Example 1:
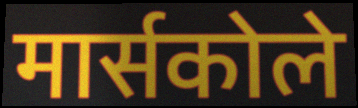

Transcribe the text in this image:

मार्सकोले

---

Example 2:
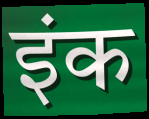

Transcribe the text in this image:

इंक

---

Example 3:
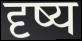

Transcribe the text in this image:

दृष्य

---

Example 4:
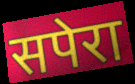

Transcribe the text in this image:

सपेरा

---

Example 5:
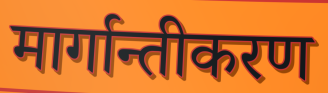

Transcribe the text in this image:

मार्गान्तीकरण